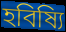
হবিষ্যি